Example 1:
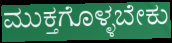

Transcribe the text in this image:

ಮುಕ್ತಗೊಳ್ಳಬೇಕು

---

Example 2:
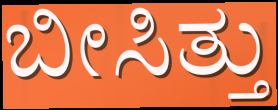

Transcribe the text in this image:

ಬೀಸಿತ್ತು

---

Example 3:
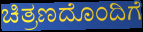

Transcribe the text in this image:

ಚಿತ್ರಣದೊಂದಿಗೆ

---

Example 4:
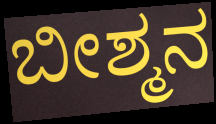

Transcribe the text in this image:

ಬೀಶ್ಮನ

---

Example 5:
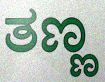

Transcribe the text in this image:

ತಣ್ಣ